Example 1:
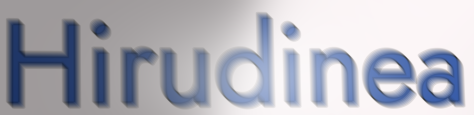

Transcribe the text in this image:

Hirudinea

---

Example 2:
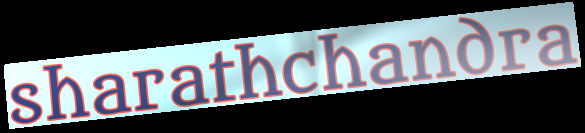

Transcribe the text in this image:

sharathchandra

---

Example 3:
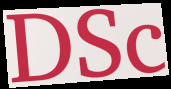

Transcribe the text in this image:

DSc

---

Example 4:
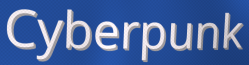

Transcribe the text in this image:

Cyberpunk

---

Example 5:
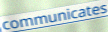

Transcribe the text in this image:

communicates